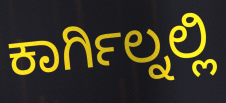
ಕಾರ್ಗಿಲ್ನಲ್ಲಿ